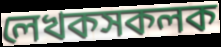
লেখকসকলক